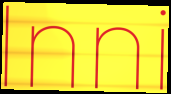
Inni